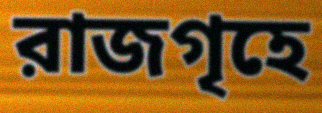
রাজগৃহে